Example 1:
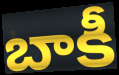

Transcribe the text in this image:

బాకీ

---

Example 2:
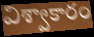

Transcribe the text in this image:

విశ్వాకారం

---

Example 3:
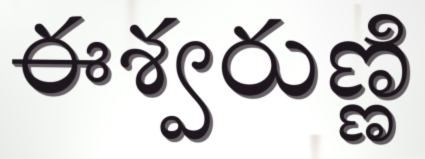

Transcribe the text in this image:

ఈశ్వరుణ్ణి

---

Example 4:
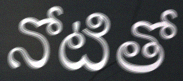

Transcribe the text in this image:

నోటితో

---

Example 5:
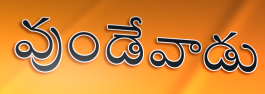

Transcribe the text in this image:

వుండేవాడు